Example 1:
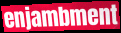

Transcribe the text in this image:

enjambment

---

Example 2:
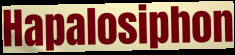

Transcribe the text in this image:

Hapalosiphon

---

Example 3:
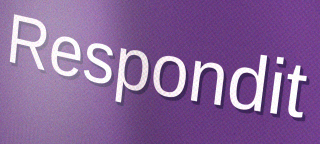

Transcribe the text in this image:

Respondit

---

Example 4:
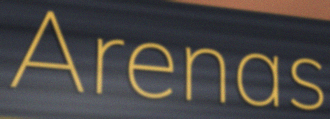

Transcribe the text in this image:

Arenas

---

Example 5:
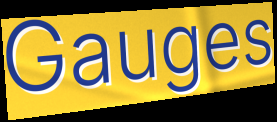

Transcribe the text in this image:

Gauges